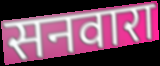
सनवारा